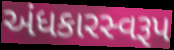
અંધકારસ્વરૂપ